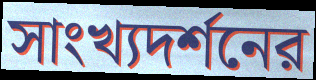
সাংখ্যদর্শনের